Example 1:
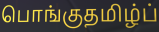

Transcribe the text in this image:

பொங்குதமிழ்ப்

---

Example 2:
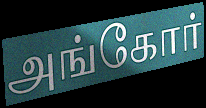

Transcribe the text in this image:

அங்கோர்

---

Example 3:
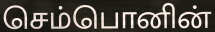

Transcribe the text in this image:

செம்பொனின்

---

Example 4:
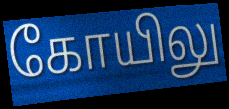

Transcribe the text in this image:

கோயிலு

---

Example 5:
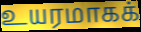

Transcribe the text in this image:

உயரமாகக்